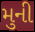
મુની